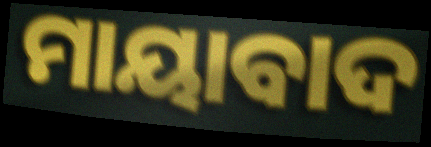
ମାୟାବାଦ